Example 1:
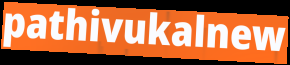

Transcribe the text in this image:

pathivukalnew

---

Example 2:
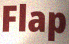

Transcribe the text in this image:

Flap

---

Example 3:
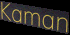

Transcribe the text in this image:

Kaman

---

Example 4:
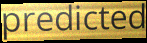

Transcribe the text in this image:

predicted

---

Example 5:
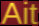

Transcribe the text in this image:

Ait